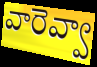
వారెవ్వా